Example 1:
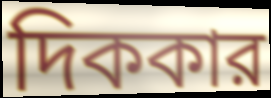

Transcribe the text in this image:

দিককার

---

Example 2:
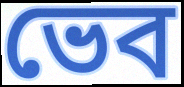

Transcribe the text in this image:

ভেব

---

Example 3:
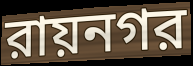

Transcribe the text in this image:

রায়নগর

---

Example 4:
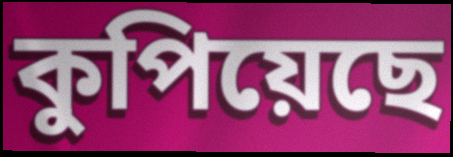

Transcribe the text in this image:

কুপিয়েছে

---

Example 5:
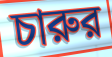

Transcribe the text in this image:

চারুর